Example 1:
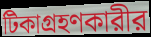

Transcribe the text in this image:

টিকাগ্রহণকারীর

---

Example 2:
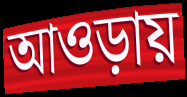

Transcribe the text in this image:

আওড়ায়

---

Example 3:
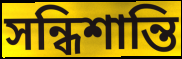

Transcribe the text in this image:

সন্ধিশান্তি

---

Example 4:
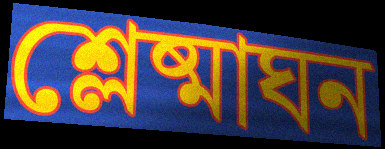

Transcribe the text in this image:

শ্লেষ্মাঘন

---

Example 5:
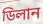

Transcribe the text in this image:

ডিলান